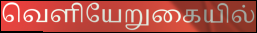
வெளியேறுகையில்